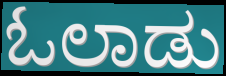
ಓಲಾಡು